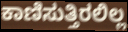
ಕಾಣಿಸುತ್ತಿರಲಿಲ್ಲ